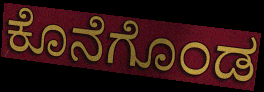
ಕೊನೆಗೊಂಡ